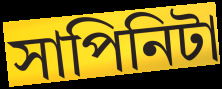
সাপিনিটা